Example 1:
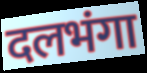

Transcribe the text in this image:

दलभंगा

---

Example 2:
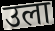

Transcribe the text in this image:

उला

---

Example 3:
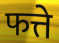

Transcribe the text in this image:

फत्ते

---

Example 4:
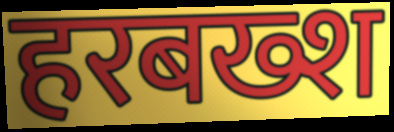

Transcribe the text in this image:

हरबख्श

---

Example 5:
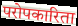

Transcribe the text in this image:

परोपकारिता